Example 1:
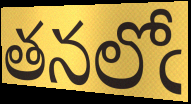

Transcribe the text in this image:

తనలోఁ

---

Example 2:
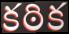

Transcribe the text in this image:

కఠిక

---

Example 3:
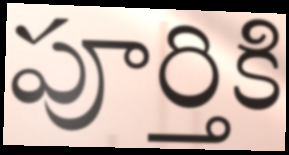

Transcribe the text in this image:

పూర్తికి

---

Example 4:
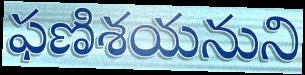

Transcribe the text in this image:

ఫణిశయనుని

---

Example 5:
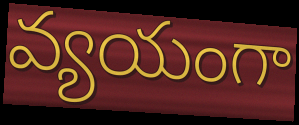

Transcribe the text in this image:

వ్యయంగా